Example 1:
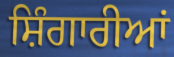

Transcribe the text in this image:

ਸ਼ਿੰਗਾਰੀਆਂ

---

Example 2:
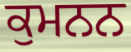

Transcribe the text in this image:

ਕੁਮਨਨ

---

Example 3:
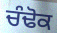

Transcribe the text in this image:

ਚੰਢੋਕ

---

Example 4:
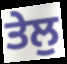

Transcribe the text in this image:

ਤੇਲੁ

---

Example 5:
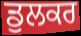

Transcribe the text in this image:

ਡੁਲਕਰ